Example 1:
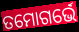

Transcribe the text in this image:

ତମୋଗର୍ଭେ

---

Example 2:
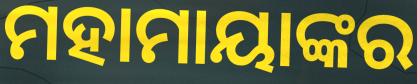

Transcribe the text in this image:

ମହାମାୟାଙ୍କର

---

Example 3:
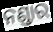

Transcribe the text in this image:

ନଣ୍ଡାର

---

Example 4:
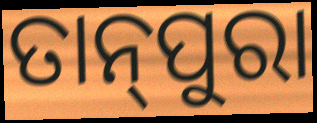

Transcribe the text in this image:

ତାନ୍‌ପୁରା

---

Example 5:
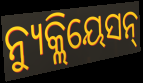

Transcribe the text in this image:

ନ୍ୟୁକ୍ଲିୟେସନ୍